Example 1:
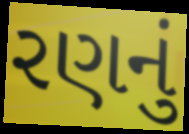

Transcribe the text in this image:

રણનું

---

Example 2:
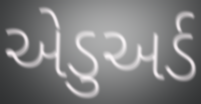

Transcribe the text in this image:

એડુઅર્ડ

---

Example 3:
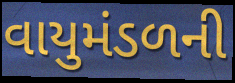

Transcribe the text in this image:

વાયુમંડળની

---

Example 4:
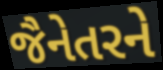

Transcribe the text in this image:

જૈનેતરને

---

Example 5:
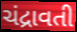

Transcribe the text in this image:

ચંદ્રાવતી